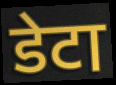
डेटा